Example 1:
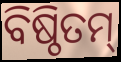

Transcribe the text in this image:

ବିଷ୍ଠିତମ୍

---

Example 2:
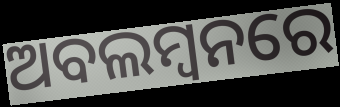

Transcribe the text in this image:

ଅବଲମ୍ବନରେ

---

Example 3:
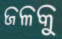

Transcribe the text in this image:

ଜଳକୁ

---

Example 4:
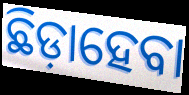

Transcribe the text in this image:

ଛିଡ଼ାହେବା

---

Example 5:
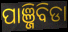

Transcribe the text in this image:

ପାଞ୍ଜିବିଡା